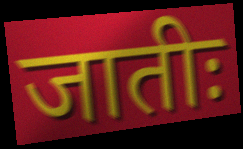
जातीः